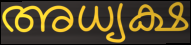
അധ്യക്ഷ